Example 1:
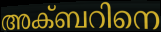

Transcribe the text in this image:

അക്ബറിനെ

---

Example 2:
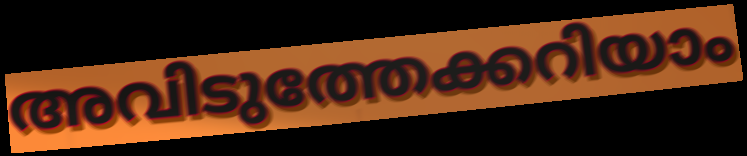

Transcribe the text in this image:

അവിടുത്തേക്കറിയാം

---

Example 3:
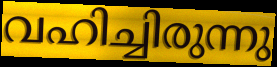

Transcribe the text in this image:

വഹിച്ചിരുന്നു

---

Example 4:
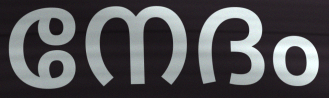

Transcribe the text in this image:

നേദം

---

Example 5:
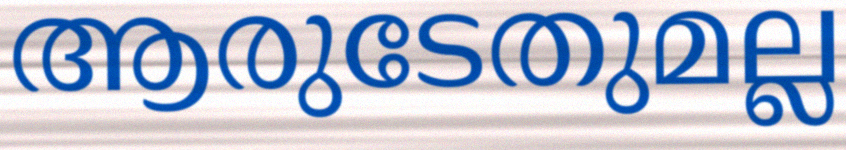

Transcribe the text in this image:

ആരുടേതുമല്ല